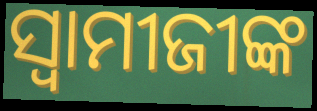
ସ୍ଵାମୀଜୀଙ୍କ